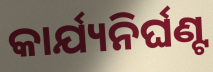
କାର୍ଯ୍ୟନିର୍ଘଣ୍ଟ